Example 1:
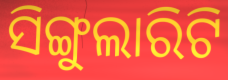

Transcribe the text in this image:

ସିଙ୍ଗୁଲାରିଟି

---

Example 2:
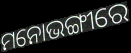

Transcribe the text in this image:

ମନୋଭଙ୍ଗୀରେ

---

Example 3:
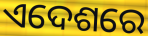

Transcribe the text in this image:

ଏଦେଶରେ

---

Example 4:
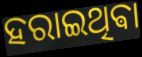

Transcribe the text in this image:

ହରାଇଥିଵା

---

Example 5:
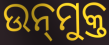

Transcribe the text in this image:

ଉନ୍‍ମୁକ୍ତ